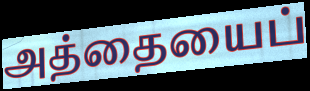
அத்தையைப்